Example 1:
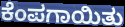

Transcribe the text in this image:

ಕೆಂಪಗಾಯಿತು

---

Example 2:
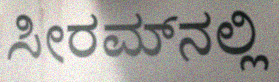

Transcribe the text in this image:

ಸೀರಮ್‌ನಲ್ಲಿ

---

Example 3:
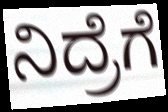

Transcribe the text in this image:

ನಿದ್ರೆಗೆ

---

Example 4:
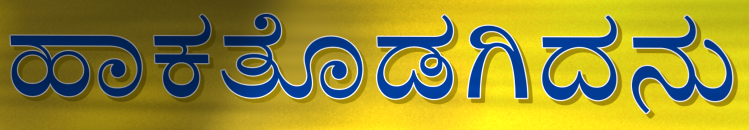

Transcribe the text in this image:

ಹಾಕತೊಡಗಿದನು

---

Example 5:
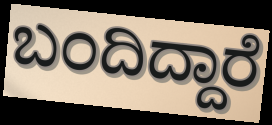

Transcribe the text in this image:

ಬಂದಿದ್ದಾರೆ